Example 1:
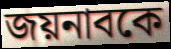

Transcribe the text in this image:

জয়নাবকে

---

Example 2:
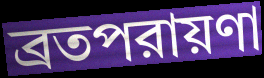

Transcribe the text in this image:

ব্রতপরায়ণা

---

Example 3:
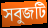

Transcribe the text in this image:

সবুজটি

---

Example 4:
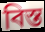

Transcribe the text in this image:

বিস্ত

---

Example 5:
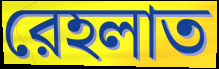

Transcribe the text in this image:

রেহলাত